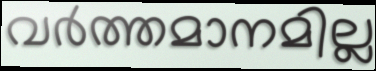
വർത്തമാനമില്ല